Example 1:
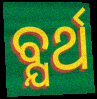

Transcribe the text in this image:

ବ୍ଯର୍ଥ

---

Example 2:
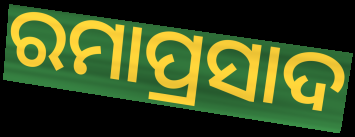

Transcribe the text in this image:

ରମାପ୍ରସାଦ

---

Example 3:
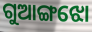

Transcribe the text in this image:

ଗୁଆଙ୍ଗଝୋ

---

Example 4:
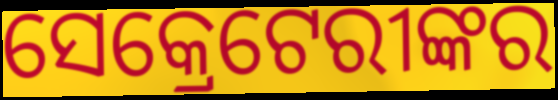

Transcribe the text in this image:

ସେକ୍ରେଟେରୀଙ୍କର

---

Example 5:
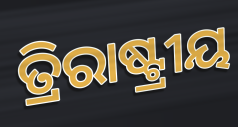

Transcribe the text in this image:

ତ୍ରିରାଷ୍ଟ୍ରୀୟ